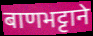
बाणभट्टाने